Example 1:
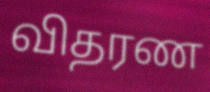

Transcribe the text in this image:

விதரண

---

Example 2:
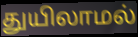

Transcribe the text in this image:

துயிலாமல்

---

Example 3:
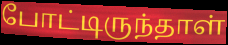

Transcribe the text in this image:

போட்டிருந்தாள்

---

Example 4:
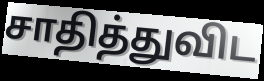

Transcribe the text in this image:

சாதித்துவிட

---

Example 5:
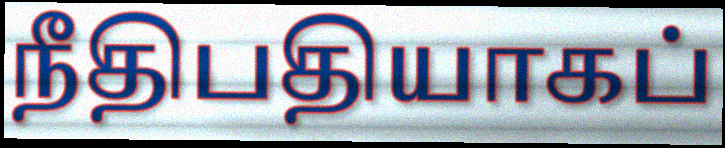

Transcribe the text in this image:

நீதிபதியாகப்